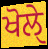
ਖੋਲੑੇ